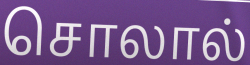
சொலால்